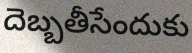
దెబ్బతీసేందుకు